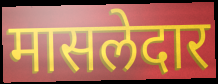
मासलेदार